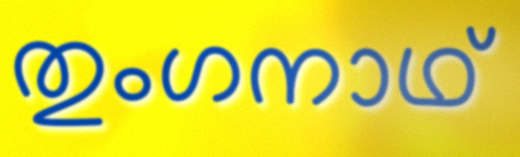
തുംഗനാഥ്